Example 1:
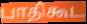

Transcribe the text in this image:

பாதிகூட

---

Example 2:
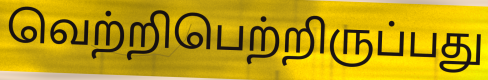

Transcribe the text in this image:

வெற்றிபெற்றிருப்பது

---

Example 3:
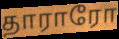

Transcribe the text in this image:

தாராரோ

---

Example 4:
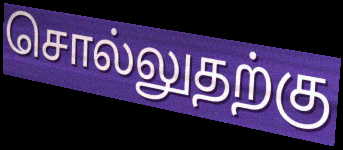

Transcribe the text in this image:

சொல்லுதற்கு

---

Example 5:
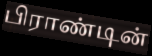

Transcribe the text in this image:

பிராண்டின்